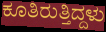
ಕೂತಿರುತ್ತಿದ್ದಳು